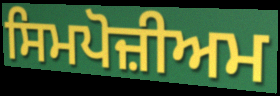
ਸਿਮਪੋਜ਼ੀਅਮ